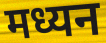
मध्यन